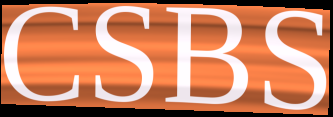
CSBS